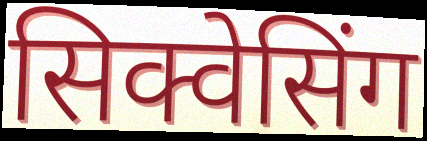
सिक्वेसिंग